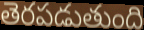
తెరపడుతుంది